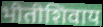
भीतीशिवाय